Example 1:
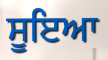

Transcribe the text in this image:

ਸੂਇਆ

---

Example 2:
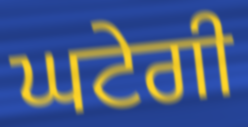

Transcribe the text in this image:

ਘਟੇਗੀ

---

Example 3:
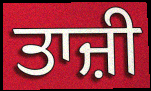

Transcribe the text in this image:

ਤਾਜ਼ੀ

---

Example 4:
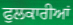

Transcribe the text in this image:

ਫੁਲਕਾਰੀਆਂ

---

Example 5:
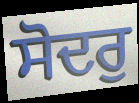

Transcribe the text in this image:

ਸੋਦਰੁ